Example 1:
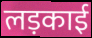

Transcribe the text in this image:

लड़काई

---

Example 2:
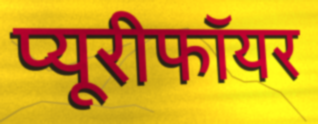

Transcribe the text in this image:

प्यूरीफॉयर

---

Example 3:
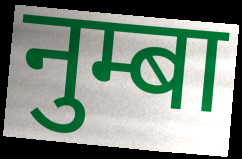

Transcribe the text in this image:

नुम्बा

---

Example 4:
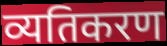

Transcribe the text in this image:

व्यतिकरण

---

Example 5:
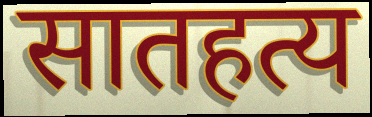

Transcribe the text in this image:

सातहत्य